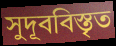
সুদূববিস্তৃত